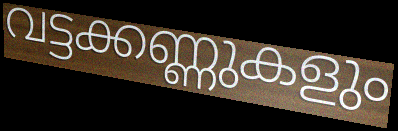
വട്ടക്കണ്ണുകളും